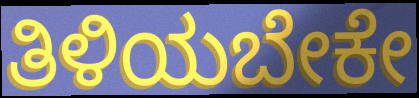
ತಿಳಿಯಬೇಕೇ